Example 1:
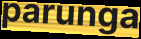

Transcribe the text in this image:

parunga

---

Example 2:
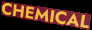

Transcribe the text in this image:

CHEMICAL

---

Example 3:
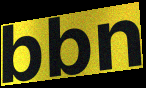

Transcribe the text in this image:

bbn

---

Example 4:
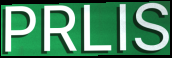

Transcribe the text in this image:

PRLIS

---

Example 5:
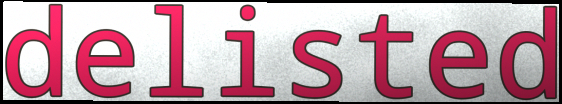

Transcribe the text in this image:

delisted